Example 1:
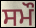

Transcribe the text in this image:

ਸਮੌ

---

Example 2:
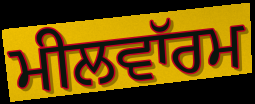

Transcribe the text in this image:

ਮੀਲਵਾੱਰਮ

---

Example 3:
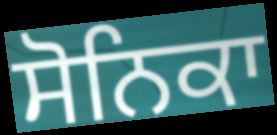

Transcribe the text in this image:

ਸੋਨਿਕਾ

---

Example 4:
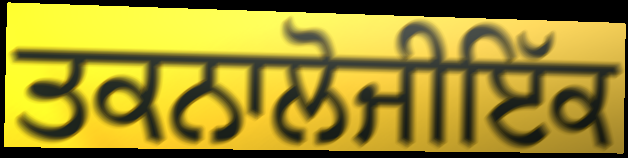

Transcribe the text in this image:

ਤਕਨਾਲੋਜੀਇੱਕ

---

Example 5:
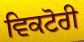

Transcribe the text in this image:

ਵਿਕਟੋਰੀ